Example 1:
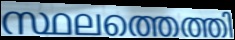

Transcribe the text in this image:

സ്ഥലത്തെത്തി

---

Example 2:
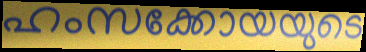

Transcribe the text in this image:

ഹംസക്കോയയുടെ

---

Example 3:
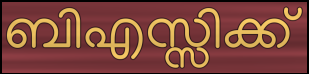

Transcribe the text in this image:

ബിഎസ്സിക്ക്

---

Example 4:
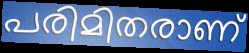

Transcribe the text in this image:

പരിമിതരാണ്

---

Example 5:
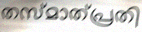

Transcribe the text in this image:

തസ്മാത്പ്രതി